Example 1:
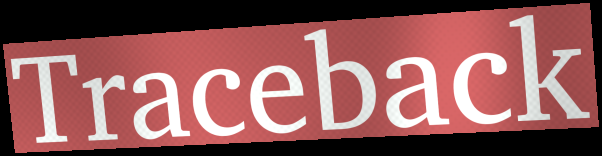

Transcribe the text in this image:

Traceback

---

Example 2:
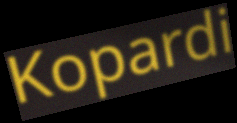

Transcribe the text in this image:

Kopardi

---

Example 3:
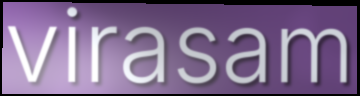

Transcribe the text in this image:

virasam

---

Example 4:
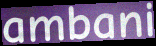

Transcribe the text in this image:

ambani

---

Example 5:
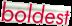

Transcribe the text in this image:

boldest